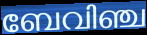
ബേവിഞ്ച